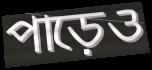
পাড়েও